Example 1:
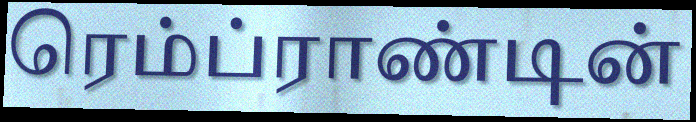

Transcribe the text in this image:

ரெம்ப்ராண்டின்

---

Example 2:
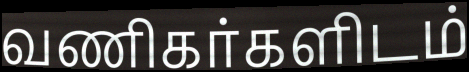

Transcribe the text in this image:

வணிகர்களிடம்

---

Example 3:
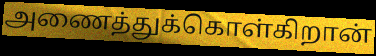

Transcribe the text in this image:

அணைத்துக்கொள்கிறான்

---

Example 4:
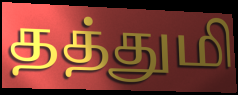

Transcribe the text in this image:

தத்துமி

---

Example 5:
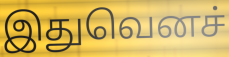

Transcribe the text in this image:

இதுவெனச்